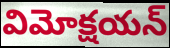
విమోక్షయన్